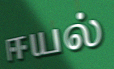
ஈயல்